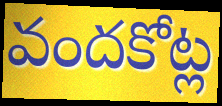
వందకోట్ల